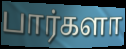
பார்களா